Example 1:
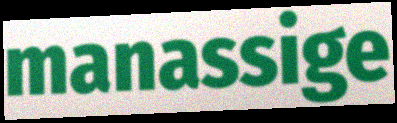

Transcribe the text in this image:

manassige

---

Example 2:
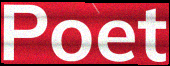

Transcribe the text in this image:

Poet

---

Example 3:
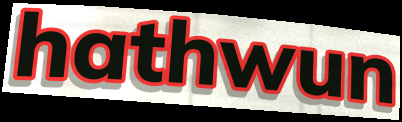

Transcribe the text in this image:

hathwun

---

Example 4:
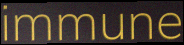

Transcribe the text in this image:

immune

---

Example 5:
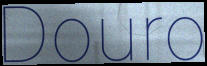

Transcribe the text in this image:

Douro